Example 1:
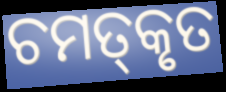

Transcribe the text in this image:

ଚମତ୍‍କୃତ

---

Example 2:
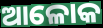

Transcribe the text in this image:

ଆଳୋକ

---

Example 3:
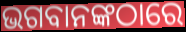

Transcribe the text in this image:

ଭଗବାନଙ୍କଠାରେ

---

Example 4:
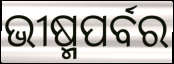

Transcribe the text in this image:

ଭୀଷ୍ମପର୍ବର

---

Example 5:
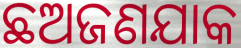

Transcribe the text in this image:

ଛଅଜଣଯାକ